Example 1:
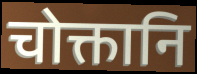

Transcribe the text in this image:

चोक्तानि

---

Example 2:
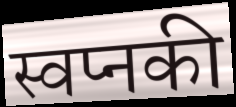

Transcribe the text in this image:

स्वप्नकी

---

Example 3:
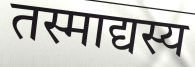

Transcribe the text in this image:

तस्माद्यस्य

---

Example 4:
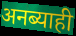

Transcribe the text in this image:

अनब्याही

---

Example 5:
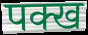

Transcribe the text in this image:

पक्ख